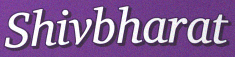
Shivbharat